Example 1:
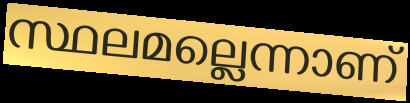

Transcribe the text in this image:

സ്ഥലമല്ലെന്നാണ്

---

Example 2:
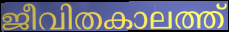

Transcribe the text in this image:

ജീവിതകാലത്ത്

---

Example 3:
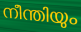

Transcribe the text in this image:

നീന്തിയും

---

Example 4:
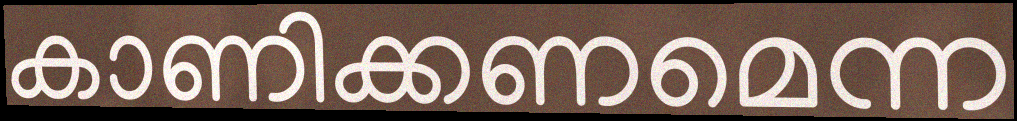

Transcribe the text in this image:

കാണിക്കണമെന്ന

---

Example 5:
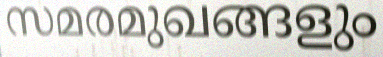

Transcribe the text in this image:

സമരമുഖങ്ങളും